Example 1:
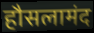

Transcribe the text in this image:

हौसलामंद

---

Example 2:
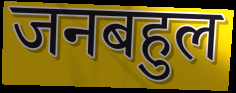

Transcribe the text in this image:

जनबहुल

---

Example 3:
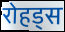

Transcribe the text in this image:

रोहड्स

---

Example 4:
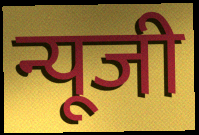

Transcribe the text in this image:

न्यूजी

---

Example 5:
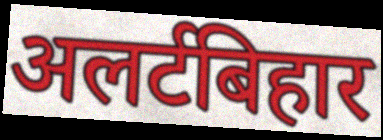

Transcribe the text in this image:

अलर्टबिहार